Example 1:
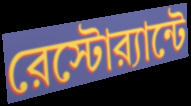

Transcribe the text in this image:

রেস্টোর‍্যান্টে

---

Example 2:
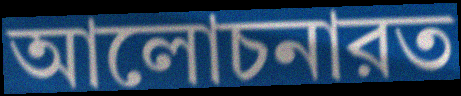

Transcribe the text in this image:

আলোচনারত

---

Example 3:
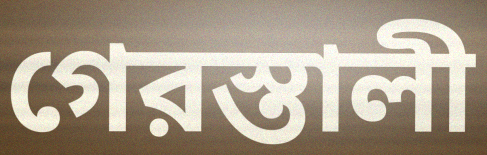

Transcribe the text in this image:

গেরস্তালী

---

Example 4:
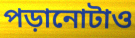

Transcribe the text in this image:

পড়ানোটাও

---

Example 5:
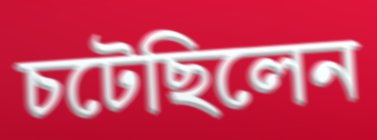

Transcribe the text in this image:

চটেছিলেন